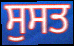
ਸੁਸਤ